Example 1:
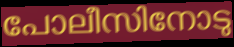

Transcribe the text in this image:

പോലീസിനോടു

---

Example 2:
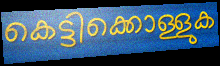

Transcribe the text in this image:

കെട്ടിക്കൊള്ളുക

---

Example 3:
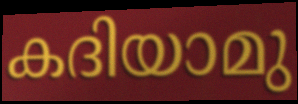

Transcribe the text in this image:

കദിയാമു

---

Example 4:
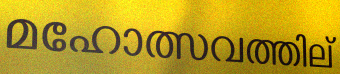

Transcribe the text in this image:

മഹോത്സവത്തില്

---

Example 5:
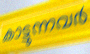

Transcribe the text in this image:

കാട്ടുന്നവർ